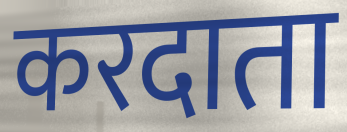
करदाता